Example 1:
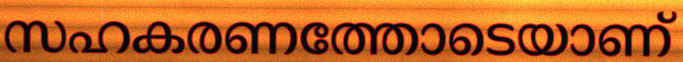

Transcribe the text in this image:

സഹകരണത്തോടെയാണ്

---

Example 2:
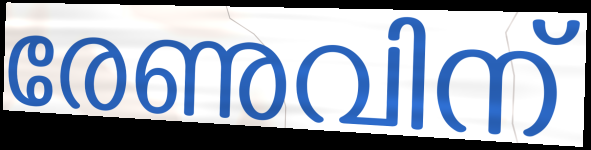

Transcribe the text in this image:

രേണുവിന്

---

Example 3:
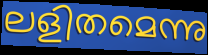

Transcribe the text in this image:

ലളിതമെന്നു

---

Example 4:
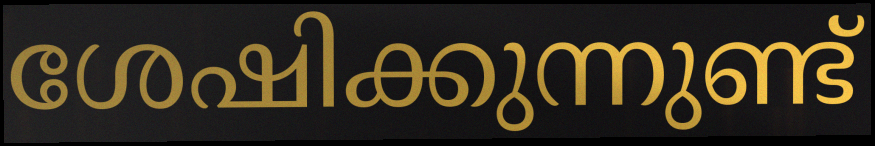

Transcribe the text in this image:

ശേഷിക്കുന്നുണ്ട്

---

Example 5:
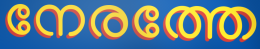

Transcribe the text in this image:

നേരത്തേ